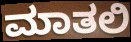
ಮಾತಲಿ